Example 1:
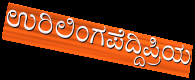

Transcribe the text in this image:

ಉರಿಲಿಂಗಪೆದ್ದಿಪ್ರಿಯ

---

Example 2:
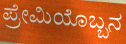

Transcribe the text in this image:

ಪ್ರೇಮಿಯೊಬ್ಬನ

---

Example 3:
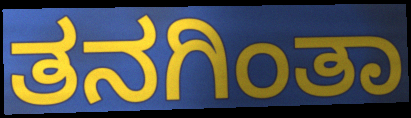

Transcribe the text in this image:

ತನಗಿಂತಾ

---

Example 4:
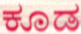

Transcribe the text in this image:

ಕೂಡ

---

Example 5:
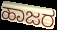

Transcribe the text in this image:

ಹಾಜರ